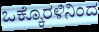
ಒಕ್ಕೊರಳಿನಿಂದ